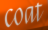
coat